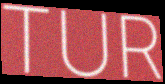
TUR